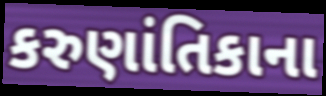
કરુણાંતિકાના